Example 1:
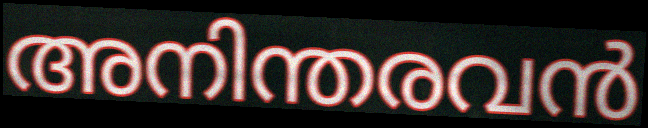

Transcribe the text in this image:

അനിന്തരവൻ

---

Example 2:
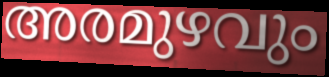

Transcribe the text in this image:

അരമുഴവും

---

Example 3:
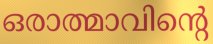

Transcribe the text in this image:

ഒരാത്മാവിന്റെ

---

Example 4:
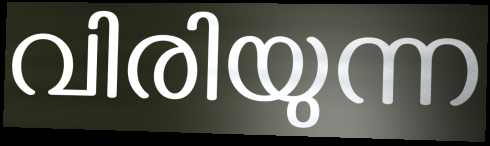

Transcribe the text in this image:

വിരിയുന്ന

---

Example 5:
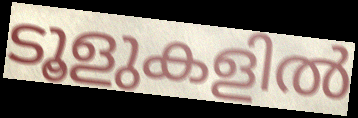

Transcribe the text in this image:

ടൂളുകളിൽ